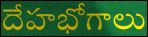
దేహభోగాలు